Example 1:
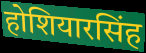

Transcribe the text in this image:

होशियारसिंह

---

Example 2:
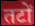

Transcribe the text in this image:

तटों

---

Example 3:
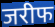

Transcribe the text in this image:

जरीफ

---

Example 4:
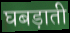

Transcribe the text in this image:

घबड़ाती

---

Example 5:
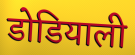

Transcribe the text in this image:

डोडियाली